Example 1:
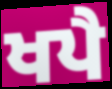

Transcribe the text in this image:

ਖਪੈ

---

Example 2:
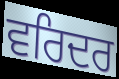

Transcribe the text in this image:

ਵਰਿਦਰ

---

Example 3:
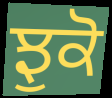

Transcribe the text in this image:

ਝੁਕੋ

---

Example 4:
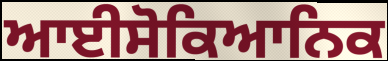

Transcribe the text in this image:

ਆਈਸੋਕਿਆਨਿਕ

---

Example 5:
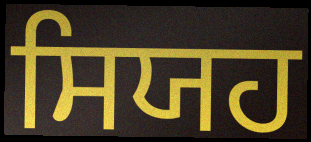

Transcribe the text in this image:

ਸਿਯਹ